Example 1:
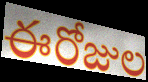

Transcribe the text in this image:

ఈరోజుల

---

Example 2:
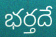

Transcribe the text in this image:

భర్తదే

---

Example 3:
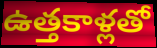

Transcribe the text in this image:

ఉత్తకాళ్లతో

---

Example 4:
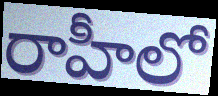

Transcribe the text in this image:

రాహీలో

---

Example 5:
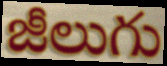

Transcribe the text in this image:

జీలుగు